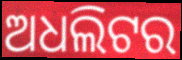
ଅଧଲିଟର